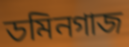
ডমিনগাজ